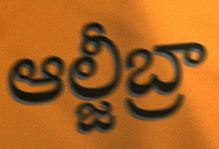
ఆల్జీబ్రా